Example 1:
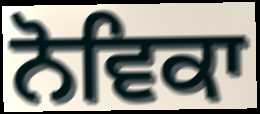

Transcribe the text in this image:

ਨੋਵਿਕਾ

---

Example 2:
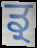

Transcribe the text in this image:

ਡ੍ਰ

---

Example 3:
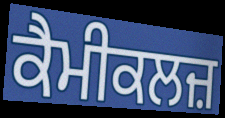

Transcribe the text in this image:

ਕੈਮੀਕਲਜ਼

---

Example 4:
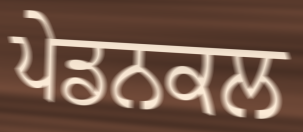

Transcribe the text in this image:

ਪੇਡਨਕਲ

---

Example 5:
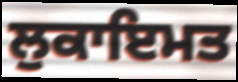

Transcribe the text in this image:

ਲੁਕਾਇਮਤ